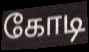
கோடி